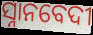
ସ୍ନାନବେଦୀ